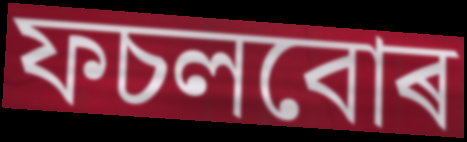
ফচলবোৰ